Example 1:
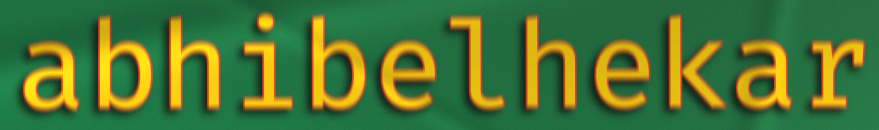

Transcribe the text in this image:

abhibelhekar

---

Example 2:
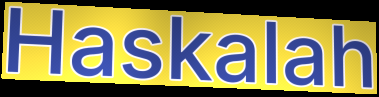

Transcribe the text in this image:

Haskalah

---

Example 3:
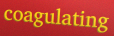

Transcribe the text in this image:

coagulating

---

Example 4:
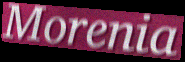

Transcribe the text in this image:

Morenia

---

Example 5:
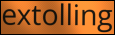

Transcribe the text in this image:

extolling